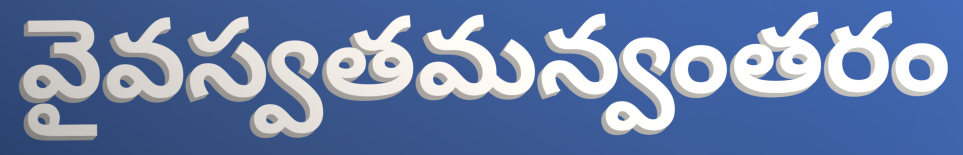
వైవస్వతమన్వంతరం